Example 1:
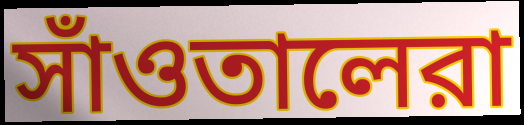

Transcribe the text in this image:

সাঁওতালেরা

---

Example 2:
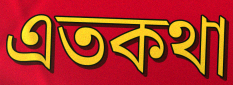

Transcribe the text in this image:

এতকথা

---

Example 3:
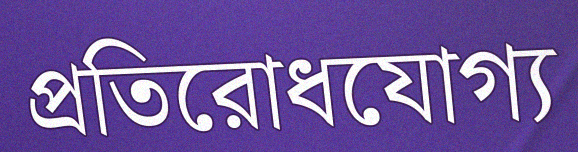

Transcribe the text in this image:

প্রতিরোধযোগ্য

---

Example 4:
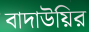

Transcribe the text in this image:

বাদাউয়ির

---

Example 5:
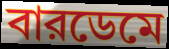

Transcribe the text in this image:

বারডেমে